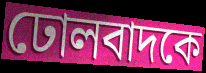
ঢোলবাদকে